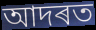
আদৰত